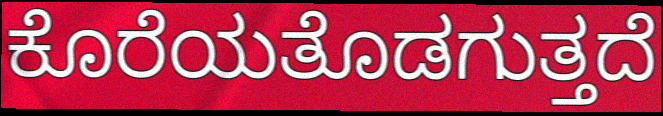
ಕೊರೆಯತೊಡಗುತ್ತದೆ